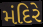
મંદિરે